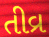
તીવ્ર